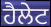
ਹੈਲੇਟ